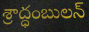
శ్రాద్ధంబులన్